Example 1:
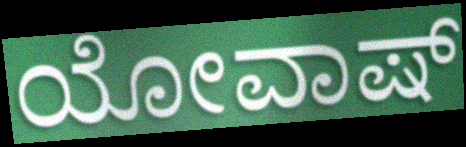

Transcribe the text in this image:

ಯೋವಾಷ್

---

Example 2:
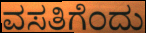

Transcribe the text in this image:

ವಸತಿಗೆಂದು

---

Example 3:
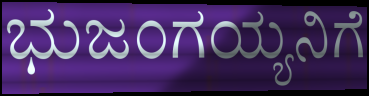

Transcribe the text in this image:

ಭುಜಂಗಯ್ಯನಿಗೆ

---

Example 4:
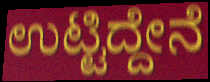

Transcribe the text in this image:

ಉಟ್ಟಿದ್ದೇನೆ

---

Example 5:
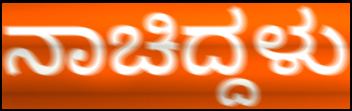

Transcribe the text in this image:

ನಾಚಿದ್ದಳು